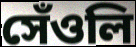
সেঁওলি